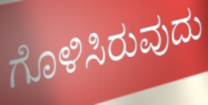
ಗೊಳಿಸಿರುವುದು